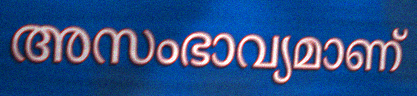
അസംഭാവ്യമാണ്